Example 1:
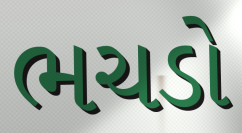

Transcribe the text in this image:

ભચડો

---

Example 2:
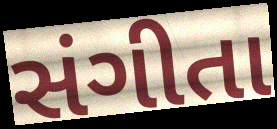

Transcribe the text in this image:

સંગીતા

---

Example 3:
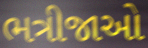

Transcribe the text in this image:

ભત્રીજાઓ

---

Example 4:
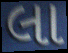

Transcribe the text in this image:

લા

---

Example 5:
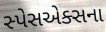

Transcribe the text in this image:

સ્પેસએક્સના